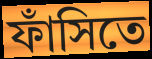
ফাঁসিতে